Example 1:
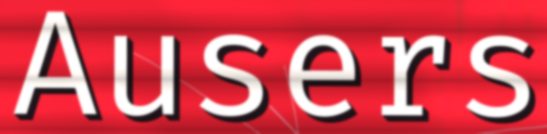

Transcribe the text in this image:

Ausers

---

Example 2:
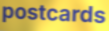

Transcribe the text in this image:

postcards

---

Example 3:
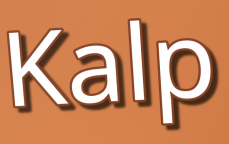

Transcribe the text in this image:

Kalp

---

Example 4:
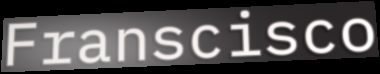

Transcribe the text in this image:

Franscisco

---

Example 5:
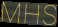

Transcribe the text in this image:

MHS